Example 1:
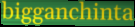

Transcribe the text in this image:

bigganchinta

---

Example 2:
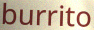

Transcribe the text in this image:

burrito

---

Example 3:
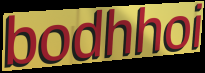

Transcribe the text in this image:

bodhhoi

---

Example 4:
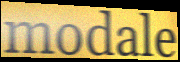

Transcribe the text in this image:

modale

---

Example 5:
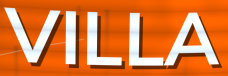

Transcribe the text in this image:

VILLA